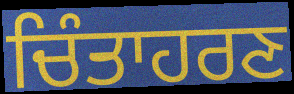
ਚਿੰਤਾਹਰਣ